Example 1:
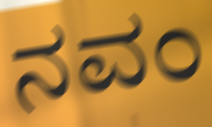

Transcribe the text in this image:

ನವಂ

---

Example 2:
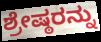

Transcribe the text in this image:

ಶ್ರೇಷ್ಠರನ್ನು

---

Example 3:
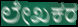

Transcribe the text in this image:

ಲೇಖಕರ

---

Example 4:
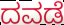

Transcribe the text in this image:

ದವಡೆ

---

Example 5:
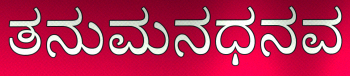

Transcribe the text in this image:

ತನುಮನಧನವ